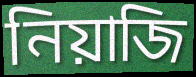
নিয়াজি